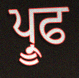
ਪ੍ਰੂਫ